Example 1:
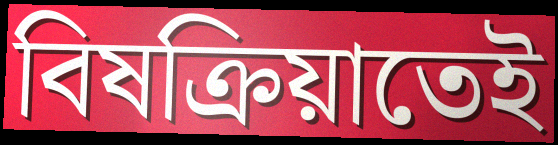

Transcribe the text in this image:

বিষক্রিয়াতেই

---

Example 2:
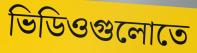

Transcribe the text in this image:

ভিডিওগুলোতে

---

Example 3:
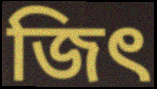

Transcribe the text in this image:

জিৎ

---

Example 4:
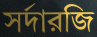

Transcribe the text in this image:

সর্দারজি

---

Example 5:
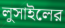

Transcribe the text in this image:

লুসাইলের